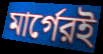
মার্গেরই